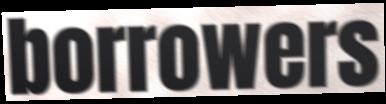
borrowers